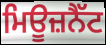
ਮਿਊਜ਼ਨੈੱਟ